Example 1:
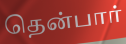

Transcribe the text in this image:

தென்பார்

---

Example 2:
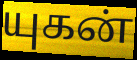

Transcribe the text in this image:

யுகன்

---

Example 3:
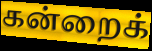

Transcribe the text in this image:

கன்றைக்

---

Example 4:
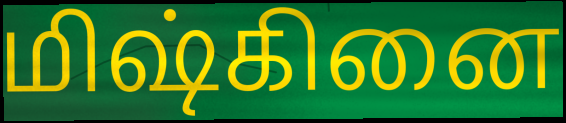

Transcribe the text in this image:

மிஷ்கினை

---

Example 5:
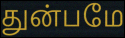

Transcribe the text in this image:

துன்பமே